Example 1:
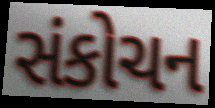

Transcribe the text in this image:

સંકોચન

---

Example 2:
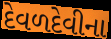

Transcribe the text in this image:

દેવળદેવીના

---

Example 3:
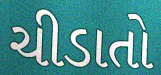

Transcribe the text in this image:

ચીડાતો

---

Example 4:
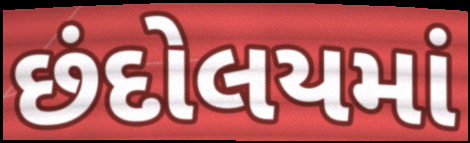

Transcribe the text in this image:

છંદોલયમાં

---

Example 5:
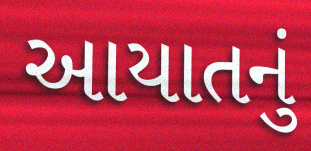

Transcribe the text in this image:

આયાતનું